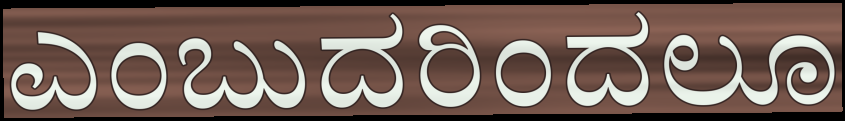
ಎಂಬುದರಿಂದಲೂ